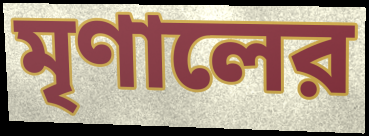
মৃণালের